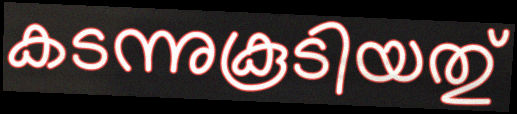
കടന്നുകൂടിയതു്